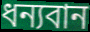
ধন্যবান